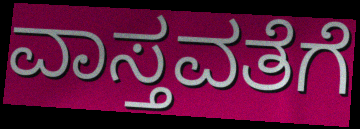
ವಾಸ್ತವತೆಗೆ